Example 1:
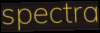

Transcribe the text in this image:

spectra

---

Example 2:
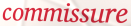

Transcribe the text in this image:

commissure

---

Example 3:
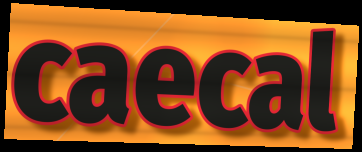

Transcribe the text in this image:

caecal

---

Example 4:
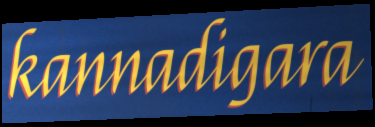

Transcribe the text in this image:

kannadigara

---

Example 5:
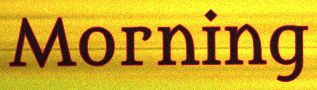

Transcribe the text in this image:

Morning